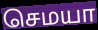
செமயா